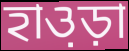
হাও়ড়া